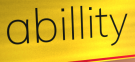
abillity